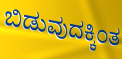
ಬಿಡುವುದಕ್ಕಿಂತ